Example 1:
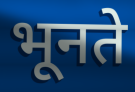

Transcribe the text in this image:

भूनते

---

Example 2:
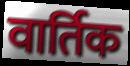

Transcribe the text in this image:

वार्तिक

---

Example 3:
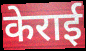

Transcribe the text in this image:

केराई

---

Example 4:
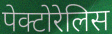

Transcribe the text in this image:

पेक्टोरेलिस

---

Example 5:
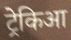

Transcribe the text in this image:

ट्रेकिआ